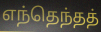
எந்தெந்தத்